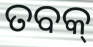
ତବକ୍